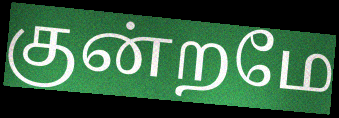
குன்றமே